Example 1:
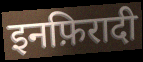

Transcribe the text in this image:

इनफ़िरादी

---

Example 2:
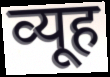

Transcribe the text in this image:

व्‍यूह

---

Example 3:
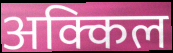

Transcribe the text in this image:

अक्किल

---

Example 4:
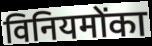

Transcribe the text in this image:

विनियमोंका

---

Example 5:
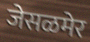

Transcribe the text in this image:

जेसळमेर